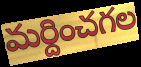
మర్దించగల